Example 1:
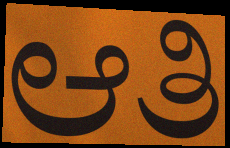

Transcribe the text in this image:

ಆತಿ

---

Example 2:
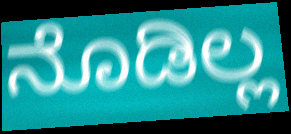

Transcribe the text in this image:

ನೊಡಿಲ್ಲ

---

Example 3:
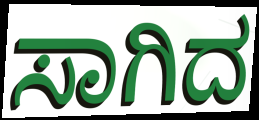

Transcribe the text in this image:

ಸಾಗಿದ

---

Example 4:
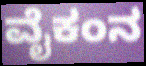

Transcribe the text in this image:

ವೈಕಂನ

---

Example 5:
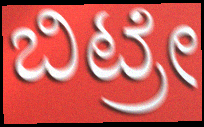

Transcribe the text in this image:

ಬಿಟ್ರೇ